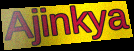
Ajinkya